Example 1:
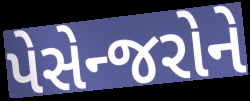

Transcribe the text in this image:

પેસેન્જરોને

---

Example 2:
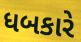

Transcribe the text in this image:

ધબકારે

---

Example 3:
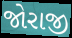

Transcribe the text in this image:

જોરાજી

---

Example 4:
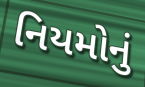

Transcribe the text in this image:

નિયમોનું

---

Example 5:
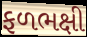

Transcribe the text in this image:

ફળભક્ષી